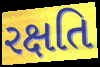
રક્ષતિ